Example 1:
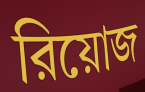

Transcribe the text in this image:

রিয়োজ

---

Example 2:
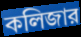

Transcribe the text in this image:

কলিজার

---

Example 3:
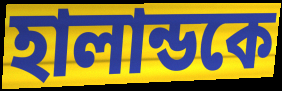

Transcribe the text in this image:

হালান্ডকে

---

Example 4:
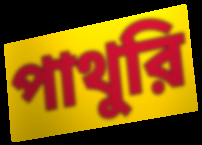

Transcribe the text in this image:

পাথুরি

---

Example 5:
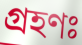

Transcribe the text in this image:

গ্রহণঃ